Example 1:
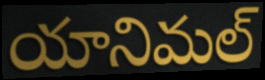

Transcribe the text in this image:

యానిమల్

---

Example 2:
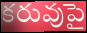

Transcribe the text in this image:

కరువుపై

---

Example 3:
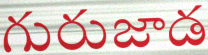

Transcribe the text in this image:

గురుజాడ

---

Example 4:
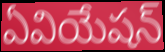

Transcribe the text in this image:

ఏవియేషన్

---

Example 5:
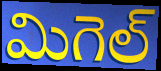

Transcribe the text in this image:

మిగెల్